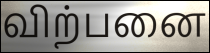
விற்பனை